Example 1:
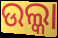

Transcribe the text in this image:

ଉଲ୍କା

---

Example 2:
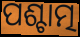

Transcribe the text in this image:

ପଶ୍ଚାତ୍ମ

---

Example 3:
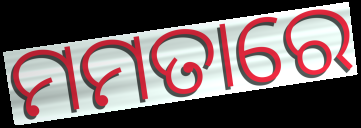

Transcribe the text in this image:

ମମତାରେ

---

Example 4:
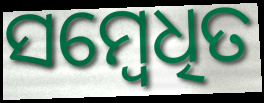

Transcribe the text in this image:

ସମ୍ବେଧିତ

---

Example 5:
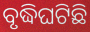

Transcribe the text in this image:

ବୃଦ୍ଧିଘଟିଛି